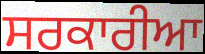
ਸਰਕਾਰੀਆ